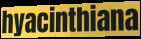
hyacinthiana